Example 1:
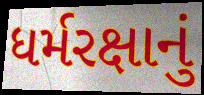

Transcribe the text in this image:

ધર્મરક્ષાનું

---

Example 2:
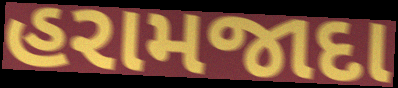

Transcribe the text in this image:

હરામજાદા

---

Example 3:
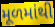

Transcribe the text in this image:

મૂળમાંથી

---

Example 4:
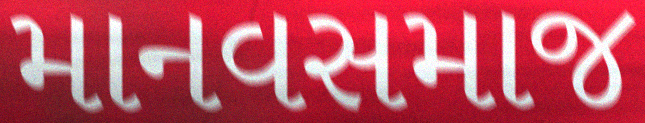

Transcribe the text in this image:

માનવસમાજ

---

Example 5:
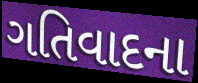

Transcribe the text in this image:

ગતિવાદના